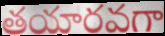
తయారవగా